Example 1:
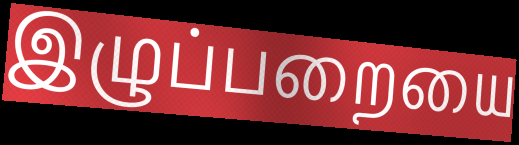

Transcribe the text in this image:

இழுப்பறையை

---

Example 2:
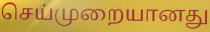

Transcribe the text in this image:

செய்முறையானது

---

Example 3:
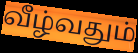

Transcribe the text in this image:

வீழ்வதும்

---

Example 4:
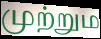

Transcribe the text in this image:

முற்றும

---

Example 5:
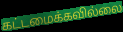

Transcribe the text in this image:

கட்டமைக்கவில்லை